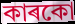
কাৰকো